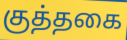
குத்தகை